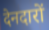
देनदारों